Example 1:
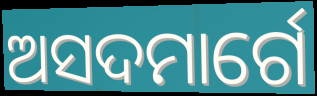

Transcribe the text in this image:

ଅସଦମାର୍ଗେ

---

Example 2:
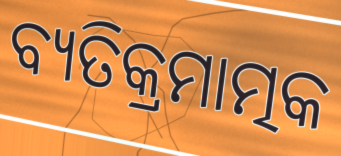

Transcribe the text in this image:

ବ୍ୟତିକ୍ରମାତ୍ମକ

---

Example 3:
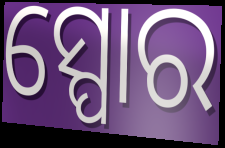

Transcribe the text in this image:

ସ୍ପୋର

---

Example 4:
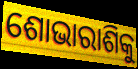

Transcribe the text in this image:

ଶୋଭାରାଶିକୁ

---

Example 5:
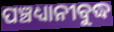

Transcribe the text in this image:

ପଞ୍ଚଧ୍ୟାନୀବୁଦ୍ଧ